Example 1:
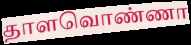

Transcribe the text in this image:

தாளவொண்ணா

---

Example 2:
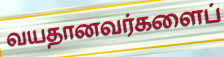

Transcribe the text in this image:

வயதானவர்களைப்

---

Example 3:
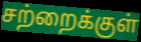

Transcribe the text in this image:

சற்றைக்குள்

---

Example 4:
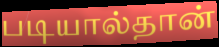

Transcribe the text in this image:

படியால்தான்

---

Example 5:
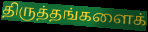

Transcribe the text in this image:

திருத்தங்களைக்